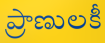
ప్రాణులకీ